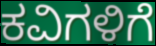
ಕವಿಗಳಿಗೆ